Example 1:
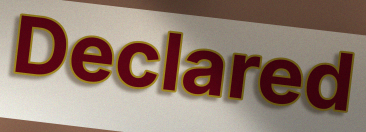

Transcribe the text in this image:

Declared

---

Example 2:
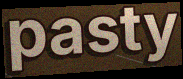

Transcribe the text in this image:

pasty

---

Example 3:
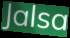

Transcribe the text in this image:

Jalsa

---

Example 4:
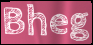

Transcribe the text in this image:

Bheg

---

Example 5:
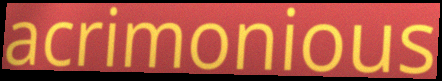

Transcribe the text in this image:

acrimonious